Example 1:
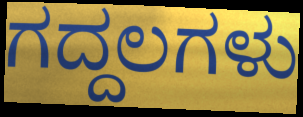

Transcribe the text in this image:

ಗದ್ದಲಗಳು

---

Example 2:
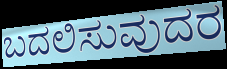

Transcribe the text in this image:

ಬದಲಿಸುವುದರ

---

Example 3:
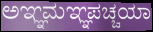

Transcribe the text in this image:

ಅಞ್ಞಮಞ್ಞಪಚ್ಚಯಾ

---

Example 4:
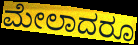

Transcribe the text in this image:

ಮೇಲಾದರೂ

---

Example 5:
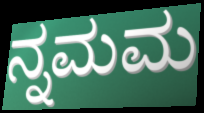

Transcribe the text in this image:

ನ್ನಮಮ